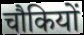
चौकियों